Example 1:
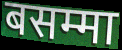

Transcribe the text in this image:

बसम्मा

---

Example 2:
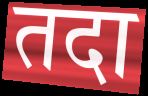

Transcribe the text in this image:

तदा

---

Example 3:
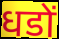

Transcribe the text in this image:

धडों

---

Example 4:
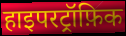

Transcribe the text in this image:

हाइपरट्रॉफ़िक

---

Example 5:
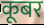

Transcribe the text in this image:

कूबर